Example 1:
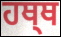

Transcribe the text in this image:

ਹਥ੍ਥ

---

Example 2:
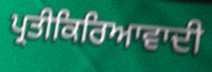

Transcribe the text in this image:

ਪ੍ਰਤੀਕਿਰਿਆਵਾਦੀ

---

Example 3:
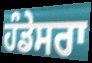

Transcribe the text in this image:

ਹੰਡੇਸਰਾ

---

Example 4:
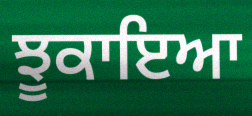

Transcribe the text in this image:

ਝੂਕਾਇਆ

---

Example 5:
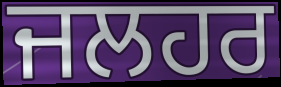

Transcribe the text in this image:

ਜਲਹਰ